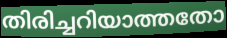
തിരിച്ചറിയാത്തതോ